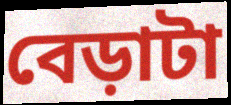
বেড়াটা